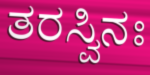
ತರಸ್ವಿನಃ